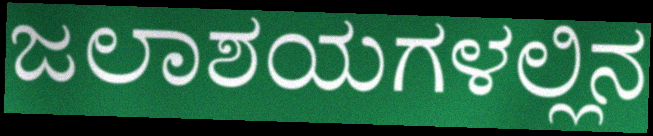
ಜಲಾಶಯಗಳಲ್ಲಿನ